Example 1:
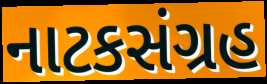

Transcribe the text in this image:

નાટકસંગ્રહ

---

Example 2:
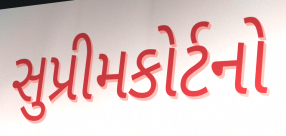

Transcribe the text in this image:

સુપ્રીમકોર્ટનો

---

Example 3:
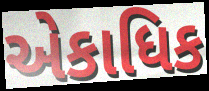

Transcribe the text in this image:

એકાધિક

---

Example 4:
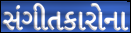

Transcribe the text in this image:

સંગીતકારોના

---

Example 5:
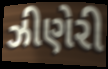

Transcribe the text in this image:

ઝીણેરી